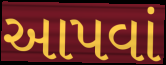
આપવાં